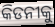
କିଡନୀକୁ